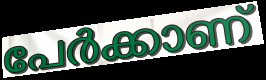
പേർക്കാണ്